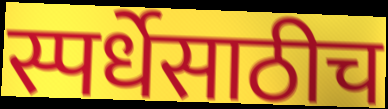
स्पर्धेसाठीच